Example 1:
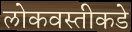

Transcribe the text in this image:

लोकवस्तीकडे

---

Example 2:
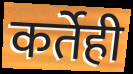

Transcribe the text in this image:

कर्तेही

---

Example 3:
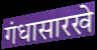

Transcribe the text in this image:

गंधासारखे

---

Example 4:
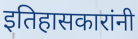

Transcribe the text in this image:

इतिहासकारांनी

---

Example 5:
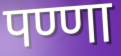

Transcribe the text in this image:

पण्णा